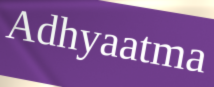
Adhyaatma